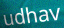
udhav